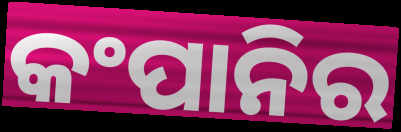
କଂପାନିର